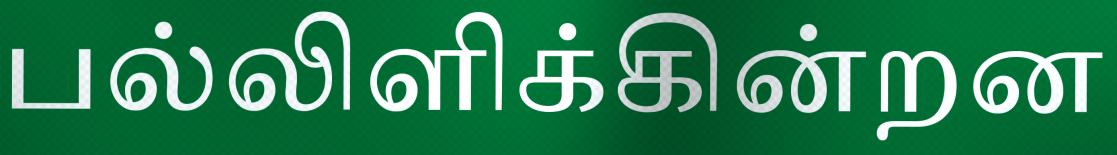
பல்லிளிக்கின்றன